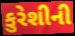
કુરેશીની